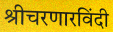
श्रीचरणारविंदी